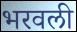
भरवली